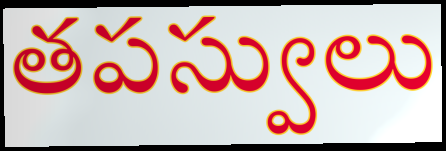
తపస్వులు